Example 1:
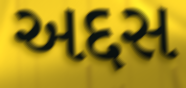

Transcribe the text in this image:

અદ્દસ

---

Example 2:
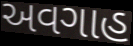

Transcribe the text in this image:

અવગાહ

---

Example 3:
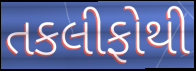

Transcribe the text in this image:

તકલીફોથી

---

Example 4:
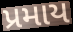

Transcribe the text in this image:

પ્રમાય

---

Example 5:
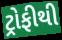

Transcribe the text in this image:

ટ્રોફીથી